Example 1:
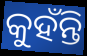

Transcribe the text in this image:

କୁହଁନ୍ତି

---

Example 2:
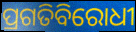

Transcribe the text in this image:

ପ୍ରଗତିବିରୋଧୀ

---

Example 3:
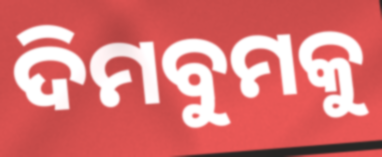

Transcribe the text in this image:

ଦିମବୁମକୁ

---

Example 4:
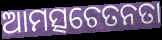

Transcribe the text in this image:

ଆମତ୍ସଚେତନତା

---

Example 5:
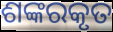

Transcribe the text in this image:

ଶଙ୍କରକୃତ